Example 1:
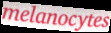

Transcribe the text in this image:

melanocytes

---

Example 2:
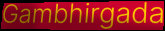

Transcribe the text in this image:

Gambhirgada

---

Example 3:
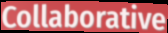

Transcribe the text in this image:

Collaborative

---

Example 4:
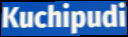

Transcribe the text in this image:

Kuchipudi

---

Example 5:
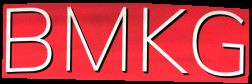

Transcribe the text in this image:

BMKG